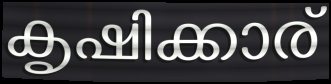
കൃഷിക്കാര്